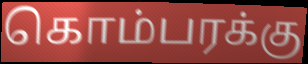
கொம்பரக்கு